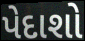
પેદાશો